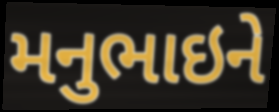
મનુભાઇને